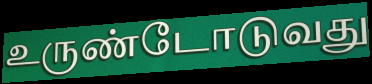
உருண்டோடுவது